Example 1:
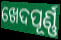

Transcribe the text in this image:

ଖେଦପୂର୍ଣ୍ଣ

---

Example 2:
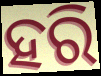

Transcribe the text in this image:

ହରି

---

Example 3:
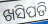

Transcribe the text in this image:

ଖସିପଡି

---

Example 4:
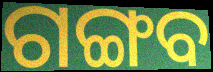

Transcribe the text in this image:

ଗଙ୍ଗବ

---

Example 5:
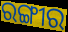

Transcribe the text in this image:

ରଙ୍ଗୀର